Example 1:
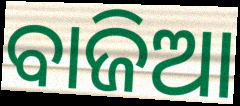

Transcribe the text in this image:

ବାଜିଆ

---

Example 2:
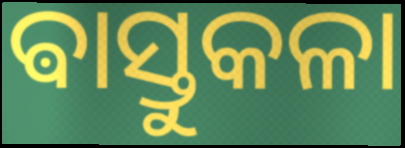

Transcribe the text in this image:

ଵାସ୍ତୁକଳା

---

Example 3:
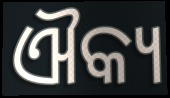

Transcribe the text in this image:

ଐକ୍ୟ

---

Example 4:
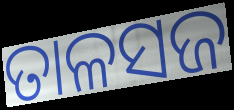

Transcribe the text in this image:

ତାଳସଜ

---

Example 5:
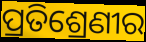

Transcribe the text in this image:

ପ୍ରତିଶ୍ରେଣୀର